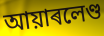
আয়াৰলেণ্ড